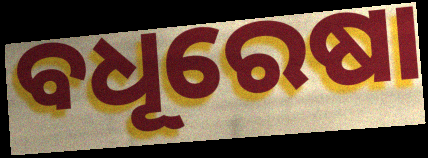
ବଧୂରେଷା